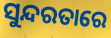
ସୁନ୍ଦରତାରେ